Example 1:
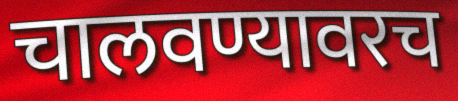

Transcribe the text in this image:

चालवण्यावरच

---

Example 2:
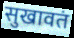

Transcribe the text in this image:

सुखावतं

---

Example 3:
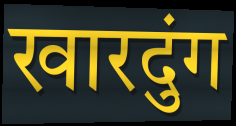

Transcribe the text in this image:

खारदुंग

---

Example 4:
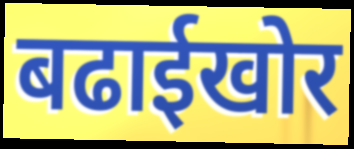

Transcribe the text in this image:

बढाईखोर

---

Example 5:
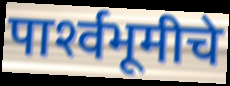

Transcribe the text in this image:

पार्श्वभूमीचे